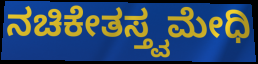
ನಚಿಕೇತಸ್ತ್ವಮೇಧಿ